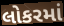
લોકરમાં